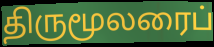
திருமூலரைப்